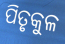
ପିତୃକୁଳ